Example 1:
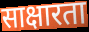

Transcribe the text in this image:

साक्षारता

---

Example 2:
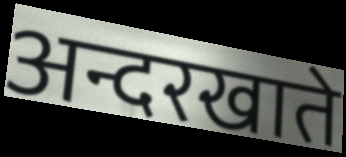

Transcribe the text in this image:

अन्दरखाते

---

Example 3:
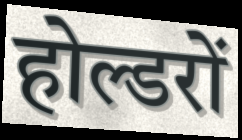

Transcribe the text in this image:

होल्‍डरों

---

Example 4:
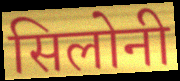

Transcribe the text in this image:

सिलोनी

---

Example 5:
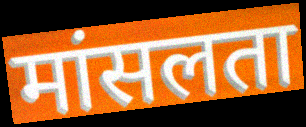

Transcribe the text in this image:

मांसलता